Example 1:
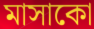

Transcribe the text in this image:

মাসাকো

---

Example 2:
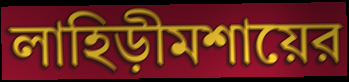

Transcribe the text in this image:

লাহিড়ীমশায়ের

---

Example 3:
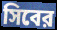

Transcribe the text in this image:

সিবের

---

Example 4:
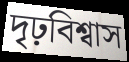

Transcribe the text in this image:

দৃঢ়বিশ্বাস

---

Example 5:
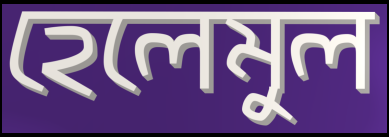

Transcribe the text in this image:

হেলেমুল